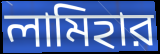
লামিহার